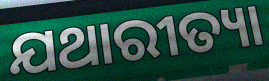
ଯଥାରୀତ୍ୟା